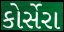
કોર્સેરા